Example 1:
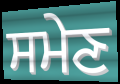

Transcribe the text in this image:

ਸਮੇਣ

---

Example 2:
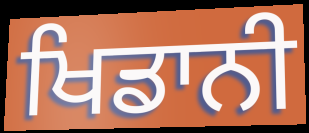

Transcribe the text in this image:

ਖਿਡਾਨੀ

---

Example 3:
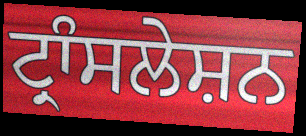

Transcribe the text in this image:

ਟ੍ਰਾੰਸਲੇਸ਼ਨ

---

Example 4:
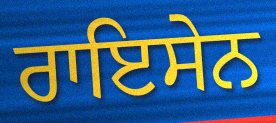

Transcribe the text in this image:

ਰਾਇਸੇਨ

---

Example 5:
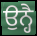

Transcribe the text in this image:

ਉਨ੍ਹੈ